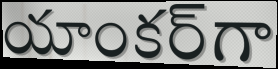
యాంకర్‌గా